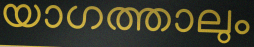
യാഗത്താലും